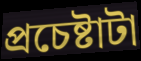
প্রচেষ্টাটা